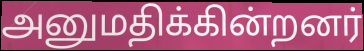
அனுமதிக்கின்றனர்